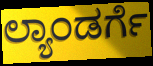
ಲ್ಯಾಂಡರ್ಗೆ